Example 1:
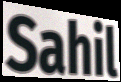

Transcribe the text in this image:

Sahil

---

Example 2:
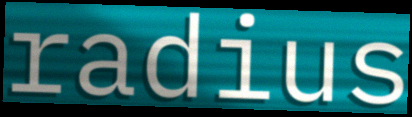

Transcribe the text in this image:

radius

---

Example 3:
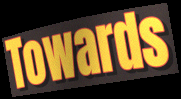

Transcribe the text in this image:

Towards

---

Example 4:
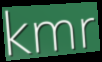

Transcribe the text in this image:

kmr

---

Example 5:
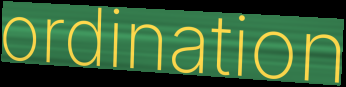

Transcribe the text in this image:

ordination